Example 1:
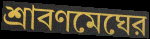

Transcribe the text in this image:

শ্রাবণমেঘের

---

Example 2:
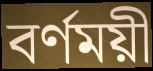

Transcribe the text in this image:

বর্ণময়ী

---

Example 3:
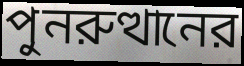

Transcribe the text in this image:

পুনরুত্থানের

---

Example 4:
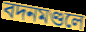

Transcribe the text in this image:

বদনমণ্ডলে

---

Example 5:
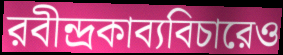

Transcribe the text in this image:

রবীন্দ্রকাব্যবিচারেও